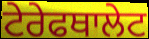
ਟੇਰੇਫਥਾਲੇਟ